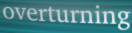
overturning